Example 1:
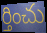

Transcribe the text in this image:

ర్తించు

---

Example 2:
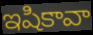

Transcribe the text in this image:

ఇషికావా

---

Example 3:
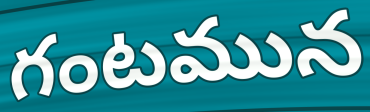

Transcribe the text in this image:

గంటమున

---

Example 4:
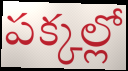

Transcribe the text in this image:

పక్కల్లో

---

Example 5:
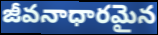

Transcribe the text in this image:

జీవనాధారమైన